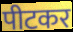
पीटकर